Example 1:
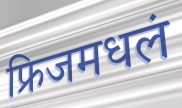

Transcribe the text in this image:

फ्रिजमधलं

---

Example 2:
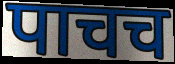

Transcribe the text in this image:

पाचच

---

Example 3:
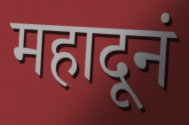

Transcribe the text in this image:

महादूनं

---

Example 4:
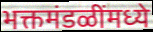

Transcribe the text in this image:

भक्तमंडळींमध्ये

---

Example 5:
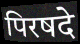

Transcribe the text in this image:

पिरषदे